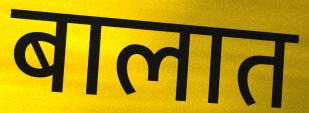
बालात